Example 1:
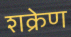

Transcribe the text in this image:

शक्रेण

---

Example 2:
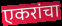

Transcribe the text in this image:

एकरांचा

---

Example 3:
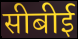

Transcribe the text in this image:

सीबीई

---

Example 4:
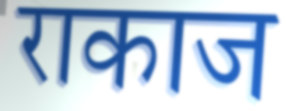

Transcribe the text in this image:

राकाज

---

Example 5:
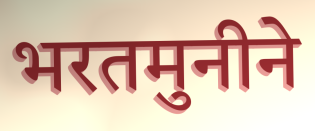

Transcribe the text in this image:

भरतमुनीने